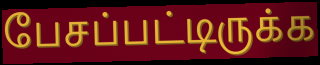
பேசப்பட்டிருக்க